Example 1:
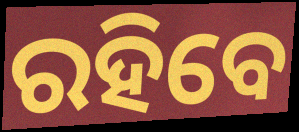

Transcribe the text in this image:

ରହିବେ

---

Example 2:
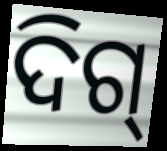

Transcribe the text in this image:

ଦିଗ୍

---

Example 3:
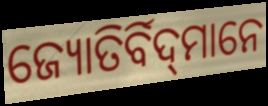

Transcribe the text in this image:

ଜ୍ୟୋତିର୍ବିଦ୍‌ମାନେ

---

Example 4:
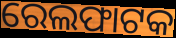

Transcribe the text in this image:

ରେଲଫାଟକ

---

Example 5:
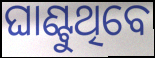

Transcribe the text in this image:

ଘାଣ୍ଟୁଥିବେ